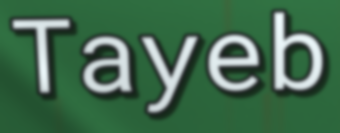
Tayeb